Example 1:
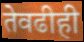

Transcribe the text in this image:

तेवढीही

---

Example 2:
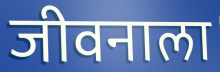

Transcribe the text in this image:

जीवनाला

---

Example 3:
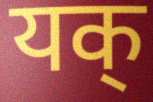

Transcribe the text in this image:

यक्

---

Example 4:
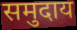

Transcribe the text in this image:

समुदाय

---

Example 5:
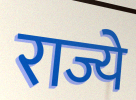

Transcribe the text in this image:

राज्ये